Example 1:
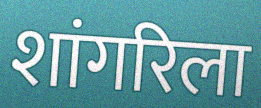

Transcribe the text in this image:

शांगरिला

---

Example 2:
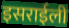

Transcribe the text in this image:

इसराईली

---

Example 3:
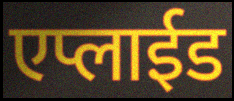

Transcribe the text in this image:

एप्लाईड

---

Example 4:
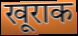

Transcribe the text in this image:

खूराक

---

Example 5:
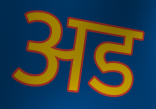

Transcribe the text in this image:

अड